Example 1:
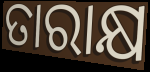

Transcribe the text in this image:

ତାରାକ୍ଷ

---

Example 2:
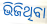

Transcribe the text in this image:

ଭିଜିଥିବା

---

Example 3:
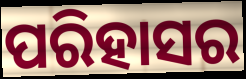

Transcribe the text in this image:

ପରିହାସର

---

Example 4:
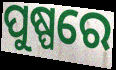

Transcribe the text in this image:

ପୁଷ୍ପରେ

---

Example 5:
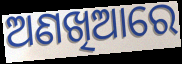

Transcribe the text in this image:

ଅଣଖିଆରେ